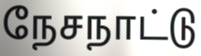
நேசநாட்டு